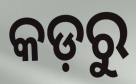
କଡ଼ରୁ